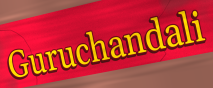
Guruchandali